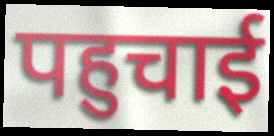
पहुचाई